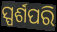
ସ୍ପର୍ଶପରି